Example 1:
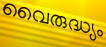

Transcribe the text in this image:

വൈരുദ്ധ്യം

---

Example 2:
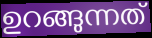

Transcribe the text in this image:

ഉറങ്ങുന്നത്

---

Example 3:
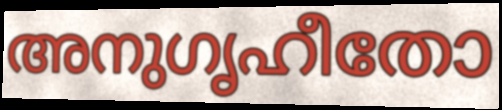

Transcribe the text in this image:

അനുഗൃഹീതോ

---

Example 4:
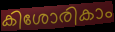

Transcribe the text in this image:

കിശോരികാം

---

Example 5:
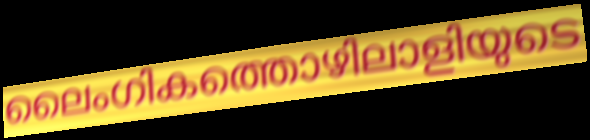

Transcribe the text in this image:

ലൈംഗികത്തൊഴിലാളിയുടെ